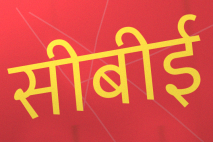
सीबीई